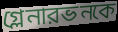
গ্লেনারভনকে